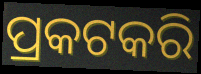
ପ୍ରକଟକରି